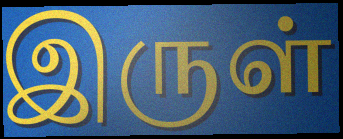
இருள்